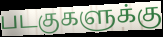
படகுகளுக்கு